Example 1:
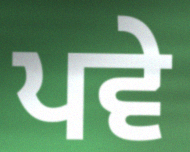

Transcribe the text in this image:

ਪਵੇ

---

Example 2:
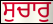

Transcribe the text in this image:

ਸੁਚਾਰੁ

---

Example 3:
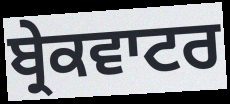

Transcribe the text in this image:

ਬ੍ਰੇਕਵਾਟਰ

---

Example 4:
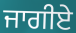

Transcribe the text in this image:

ਜਾਗੀਏ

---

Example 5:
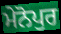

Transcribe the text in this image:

ਮੇਨੋਪੁਰ